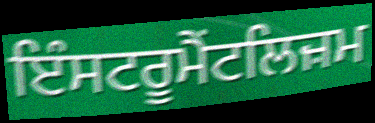
ਇੰਸਟਰੂਮੈਂਟਲਿਜ਼ਮ